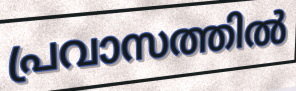
പ്രവാസത്തിൽ